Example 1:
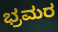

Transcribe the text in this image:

ಭ್ರಮರ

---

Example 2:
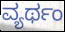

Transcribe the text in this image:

ವ್ಯರ್ಥಂ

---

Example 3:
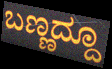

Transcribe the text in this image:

ಬಣ್ಣದ್ದೂ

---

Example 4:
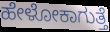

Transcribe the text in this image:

ಹೇಳೋಕಾಗುತ್ತೆ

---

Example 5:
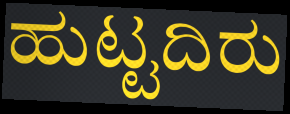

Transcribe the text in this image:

ಹುಟ್ಟದಿರು